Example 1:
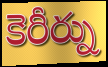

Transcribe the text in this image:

కెరీర్ను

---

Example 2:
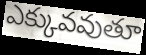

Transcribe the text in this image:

ఎక్కువవుతూ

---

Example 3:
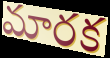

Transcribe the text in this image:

మారక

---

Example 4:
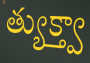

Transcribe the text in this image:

త్యుక్త్వా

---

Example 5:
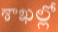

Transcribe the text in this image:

శాఖల్లో